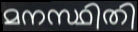
മനസ്ഥിതി